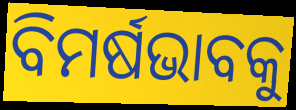
ବିମର୍ଷଭାବକୁ